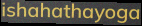
ishahathayoga